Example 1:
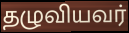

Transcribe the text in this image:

தழுவியவர்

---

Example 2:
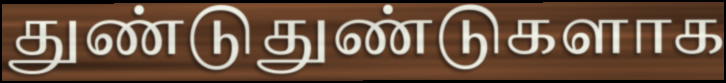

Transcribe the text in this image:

துண்டுதுண்டுகளாக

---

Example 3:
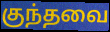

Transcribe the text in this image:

குந்தவை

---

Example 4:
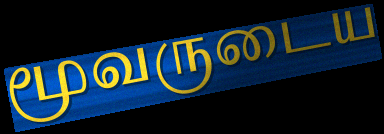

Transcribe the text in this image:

மூவருடைய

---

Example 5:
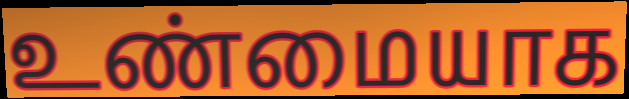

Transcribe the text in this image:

உண்மையாக